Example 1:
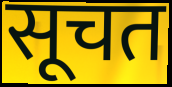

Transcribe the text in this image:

सूचत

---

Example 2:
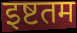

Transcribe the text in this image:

इष्टतम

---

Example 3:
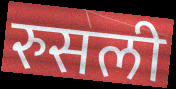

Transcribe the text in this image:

रुसली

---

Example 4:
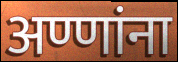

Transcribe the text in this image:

अण्णांना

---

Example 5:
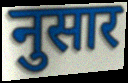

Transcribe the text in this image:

नुसार